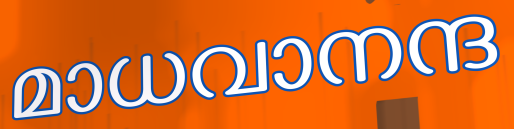
മാധവാനന്ദ